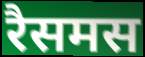
रैसमस